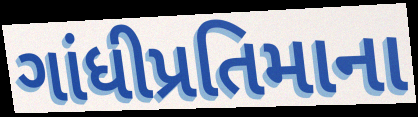
ગાંધીપ્રતિમાના